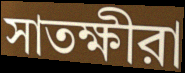
সাতক্ষীরা